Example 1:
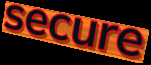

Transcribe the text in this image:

secure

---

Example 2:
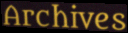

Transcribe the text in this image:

Archives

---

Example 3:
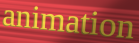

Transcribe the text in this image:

animation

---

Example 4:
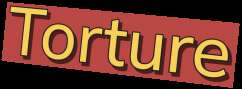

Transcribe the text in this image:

Torture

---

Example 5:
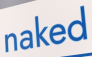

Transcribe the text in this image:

naked